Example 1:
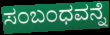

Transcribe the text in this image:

ಸಂಬಂಧವನ್ನೆ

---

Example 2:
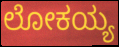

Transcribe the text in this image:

ಲೋಕಯ್ಯ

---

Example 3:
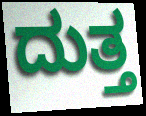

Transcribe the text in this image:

ದುತ್ತ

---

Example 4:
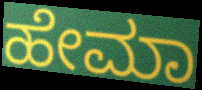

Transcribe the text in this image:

ಹೇಮಾ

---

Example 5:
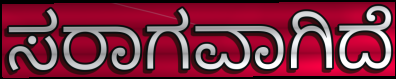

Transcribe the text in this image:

ಸರಾಗವಾಗಿದೆ